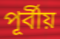
পূর্বীয়